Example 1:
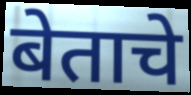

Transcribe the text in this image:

बेताचे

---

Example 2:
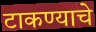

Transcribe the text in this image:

टाकण्याचे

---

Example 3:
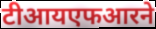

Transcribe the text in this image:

टीआयएफआरने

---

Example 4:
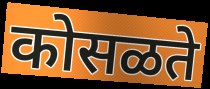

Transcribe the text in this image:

कोसळते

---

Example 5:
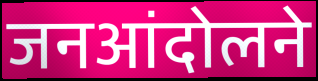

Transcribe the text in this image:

जनआंदोलने